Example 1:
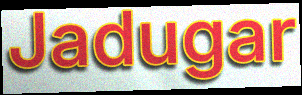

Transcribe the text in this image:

Jadugar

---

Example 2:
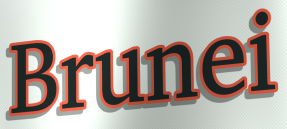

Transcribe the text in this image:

Brunei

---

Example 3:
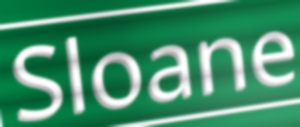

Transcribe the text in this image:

Sloane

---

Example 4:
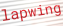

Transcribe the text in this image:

lapwing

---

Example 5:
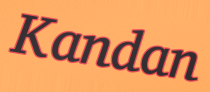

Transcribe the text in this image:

Kandan